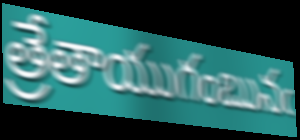
త్రేతాయుగంబునఁ